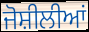
ਜੋਸ਼ੀਲੀਆਂ